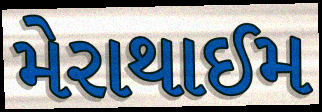
મેરાથાઈમ